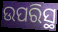
ଉପରିସ୍ଥ